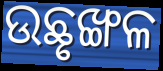
ଉଛୃଙ୍ଖଳ